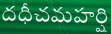
దధీచమహర్షి